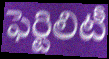
ఫెర్టిలిటీ